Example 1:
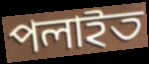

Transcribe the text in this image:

পলাইত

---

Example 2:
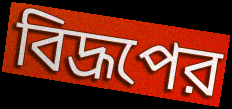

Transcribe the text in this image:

বিদ্রূপের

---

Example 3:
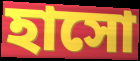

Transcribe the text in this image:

হাসো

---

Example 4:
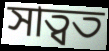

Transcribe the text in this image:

সাত্বত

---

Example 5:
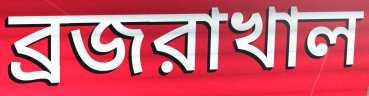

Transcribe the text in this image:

ব্রজরাখাল